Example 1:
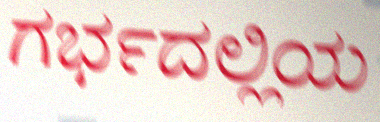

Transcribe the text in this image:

ಗರ್ಭದಲ್ಲಿಯ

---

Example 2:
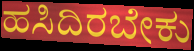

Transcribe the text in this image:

ಹಸಿದಿರಬೇಕು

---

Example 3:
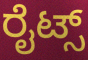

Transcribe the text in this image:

ರೈಟ್ಸ್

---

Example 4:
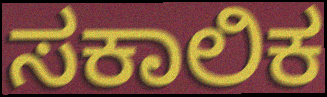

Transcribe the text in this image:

ಸಕಾಲಿಕ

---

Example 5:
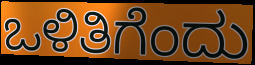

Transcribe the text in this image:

ಒಳಿತಿಗೆಂದು